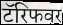
टॅरिफवर